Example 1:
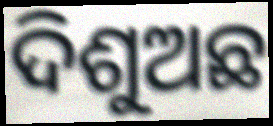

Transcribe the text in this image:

ଦିଶୁଅଛ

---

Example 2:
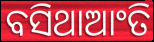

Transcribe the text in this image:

ବସିଥାଆଂତି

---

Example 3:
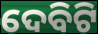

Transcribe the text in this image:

ଦେବିଟି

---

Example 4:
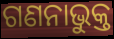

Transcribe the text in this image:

ଗଣନାଭୁକ୍ତ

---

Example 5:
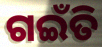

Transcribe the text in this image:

ଗଇଁତି